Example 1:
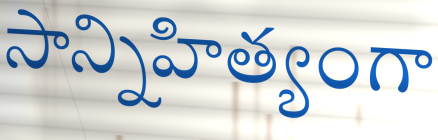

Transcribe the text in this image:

సాన్నిహిత్యంగా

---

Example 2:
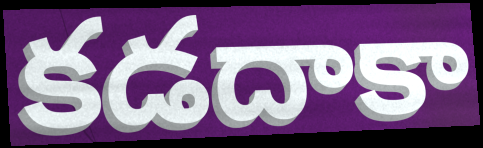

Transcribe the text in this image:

కడదాకా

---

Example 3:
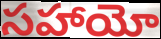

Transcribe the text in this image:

సహాయో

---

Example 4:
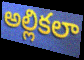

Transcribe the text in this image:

అల్లికలా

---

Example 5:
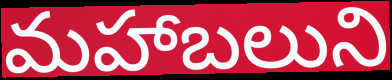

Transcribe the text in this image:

మహాబలుని